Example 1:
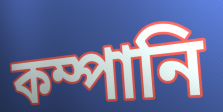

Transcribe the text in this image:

কম্পানি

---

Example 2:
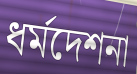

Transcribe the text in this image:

ধর্মদেশনা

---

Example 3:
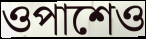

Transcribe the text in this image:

ওপাশেও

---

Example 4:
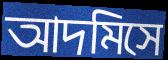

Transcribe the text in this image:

আদমিসে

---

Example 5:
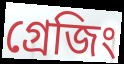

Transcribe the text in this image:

গ্রেজিং